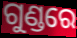
ଗୁଣ୍ଡରେ